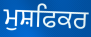
ਮੁਸ਼ਫਿਕਰ